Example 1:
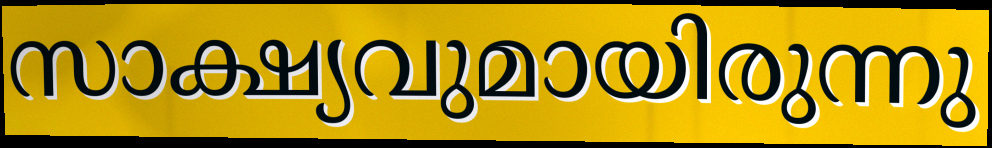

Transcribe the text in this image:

സാക്ഷ്യവുമായിരുന്നു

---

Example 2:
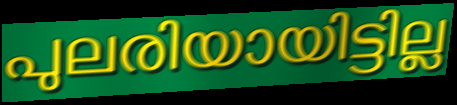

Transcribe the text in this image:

പുലരിയായിട്ടില്ല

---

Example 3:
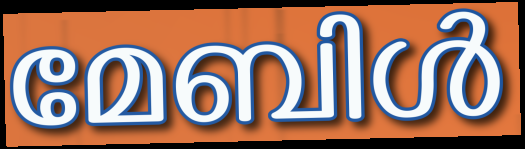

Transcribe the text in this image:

മേബിൾ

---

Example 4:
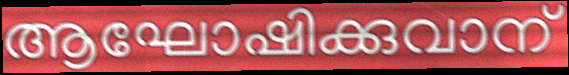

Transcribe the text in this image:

ആഘോഷിക്കുവാന്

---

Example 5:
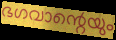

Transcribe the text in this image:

ഭഗവാന്റെയും